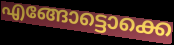
എങ്ങോട്ടൊക്കെ